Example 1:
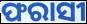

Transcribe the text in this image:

ଫରାସୀ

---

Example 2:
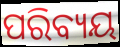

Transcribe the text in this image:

ପରିବ୍ୟୟ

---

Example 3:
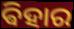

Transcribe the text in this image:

ଵିହାର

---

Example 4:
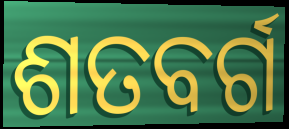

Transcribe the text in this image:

ଶତବର୍ଗ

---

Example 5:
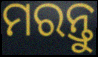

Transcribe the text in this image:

ମରନ୍ତୁ